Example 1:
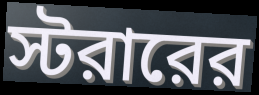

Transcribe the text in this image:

স্টরারের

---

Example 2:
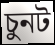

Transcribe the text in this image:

চুনট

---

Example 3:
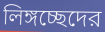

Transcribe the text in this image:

লিঙ্গচ্ছেদের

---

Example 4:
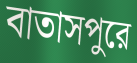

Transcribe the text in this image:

বাতাসপুরে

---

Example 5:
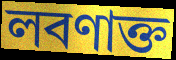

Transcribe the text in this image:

লবণাক্ত